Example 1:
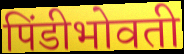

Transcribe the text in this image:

पिंडीभोवती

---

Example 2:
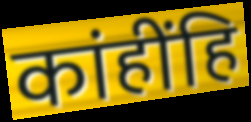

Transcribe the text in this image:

कांहींहि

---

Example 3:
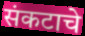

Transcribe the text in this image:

संकटाचे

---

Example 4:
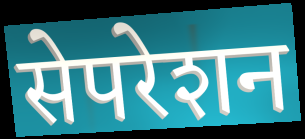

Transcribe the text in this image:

सेपरेशन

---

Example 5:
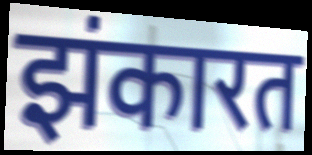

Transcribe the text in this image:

झंकारत